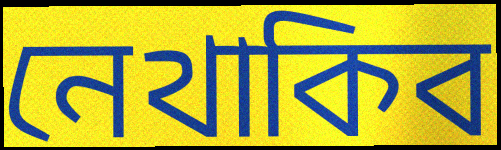
নেথাকিব